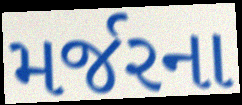
મર્જરના